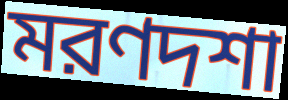
মরণদশা